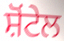
ਸ਼ੋਂਟੇਲ